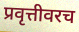
प्रवृत्तीवरच